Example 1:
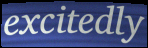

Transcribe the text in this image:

excitedly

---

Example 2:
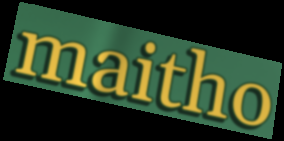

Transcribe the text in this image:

maitho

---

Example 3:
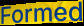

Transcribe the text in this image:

Formed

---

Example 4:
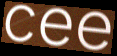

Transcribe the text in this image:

cee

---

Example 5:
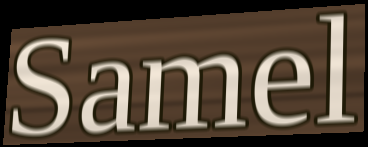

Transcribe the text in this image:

Samel